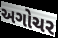
અગોચર